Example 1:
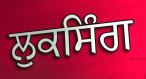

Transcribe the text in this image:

ਲੁਕਸਿੰਗ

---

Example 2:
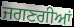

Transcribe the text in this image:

ਜਗਣਗੀਆਂ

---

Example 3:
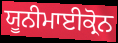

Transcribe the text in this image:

ਯੂਨੀਮਾਈਕ੍ਰੋਨ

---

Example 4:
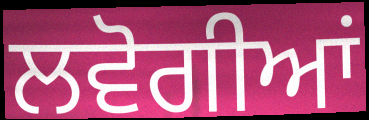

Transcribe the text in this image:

ਲਵੋਗੀਆਂ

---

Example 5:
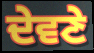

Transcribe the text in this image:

ਦੇਵਣੇ